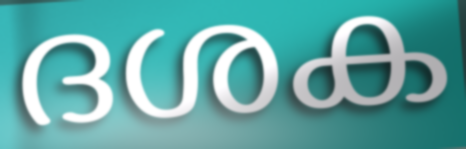
ദശക